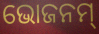
ଭୋଜନମ୍